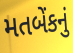
મતબેંકનું